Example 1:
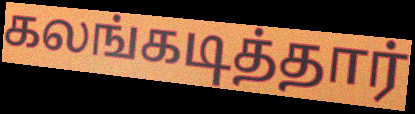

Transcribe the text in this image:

கலங்கடித்தார்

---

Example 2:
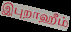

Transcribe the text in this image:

இபுறாஹீம்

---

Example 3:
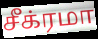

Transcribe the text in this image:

சீக்ரமா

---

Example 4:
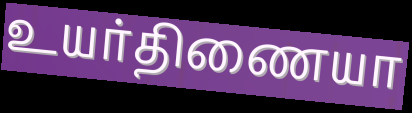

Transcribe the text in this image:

உயர்திணையா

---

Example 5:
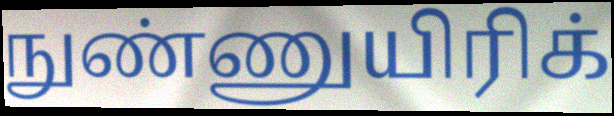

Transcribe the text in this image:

நுண்ணுயிரிக்